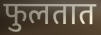
फुलतात